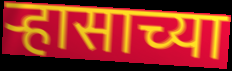
ऱ्हासाच्या